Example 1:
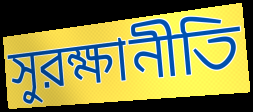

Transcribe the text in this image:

সুরক্ষানীতি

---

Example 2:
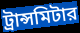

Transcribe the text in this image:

ট্রান্সমিটার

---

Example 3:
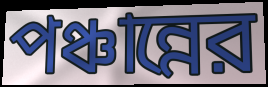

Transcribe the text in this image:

পঞ্চান্নের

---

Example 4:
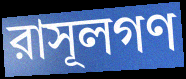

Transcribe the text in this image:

রাসূলগণ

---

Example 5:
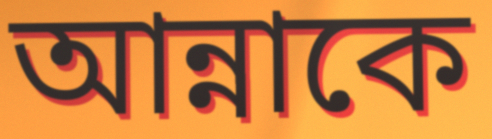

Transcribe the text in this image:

আন্নাকে